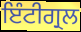
ਇੰਟੀਗ੍ਰਲ